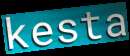
kesta